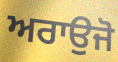
ਅਰਾਉਜੋ